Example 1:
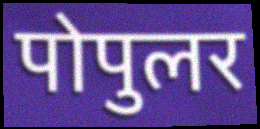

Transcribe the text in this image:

पोपुलर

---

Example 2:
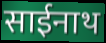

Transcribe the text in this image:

साईनाथ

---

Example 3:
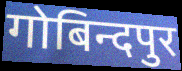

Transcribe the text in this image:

गोबिन्दपुर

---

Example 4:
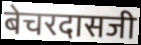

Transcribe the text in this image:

बेचरदासजी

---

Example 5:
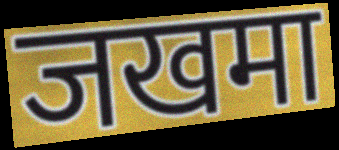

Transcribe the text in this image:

जखमा